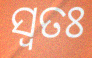
ସ୍ଵତଃ